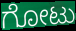
ಗೋಟು